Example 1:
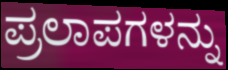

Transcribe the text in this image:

ಪ್ರಲಾಪಗಳನ್ನು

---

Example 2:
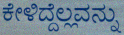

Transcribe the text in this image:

ಕೇಳಿದ್ದೆಲ್ಲವನ್ನು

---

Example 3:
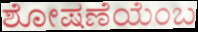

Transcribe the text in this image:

ಶೋಷಣೆಯೆಂಬ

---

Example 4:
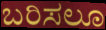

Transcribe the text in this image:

ಬರಿಸಲೂ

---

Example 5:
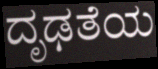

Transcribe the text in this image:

ದೃಢತೆಯ